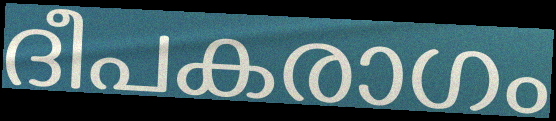
ദീപകരാഗം